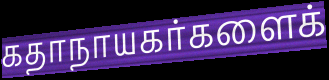
கதாநாயகர்களைக்